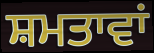
ਸ਼ਮਤਾਵਾਂ